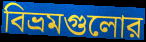
বিভ্রমগুলোর